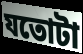
যতোটা